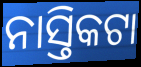
ନାସ୍ତିକଟା